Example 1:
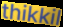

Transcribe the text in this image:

thikkil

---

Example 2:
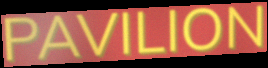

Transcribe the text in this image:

PAVILION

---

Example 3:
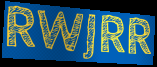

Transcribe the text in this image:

RWJRR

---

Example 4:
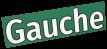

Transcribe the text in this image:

Gauche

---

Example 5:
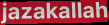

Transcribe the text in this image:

jazakallah